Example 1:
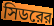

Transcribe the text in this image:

সিডরের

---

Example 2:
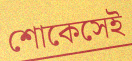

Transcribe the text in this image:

শোকেসেই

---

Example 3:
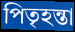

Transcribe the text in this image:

পিতৃহন্তা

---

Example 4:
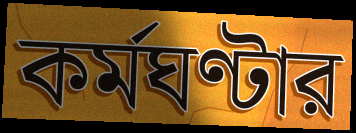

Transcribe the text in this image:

কর্মঘণ্টার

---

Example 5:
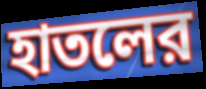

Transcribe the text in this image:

হাতলের